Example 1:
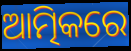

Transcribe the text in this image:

ଆତ୍ମିକରେ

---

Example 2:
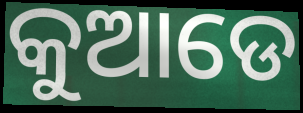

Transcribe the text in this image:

କୁଆଡେ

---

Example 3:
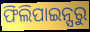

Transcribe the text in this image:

ଫିଲିପାଇନ୍ସରୁ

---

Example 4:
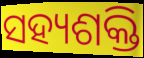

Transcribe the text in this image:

ସହ୍ୟଶକ୍ତି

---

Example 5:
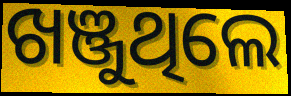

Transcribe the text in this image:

ଖଞ୍ଜୁଥିଲେ